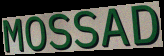
MOSSAD